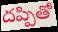
దప్పితో